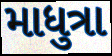
માધુત્રા